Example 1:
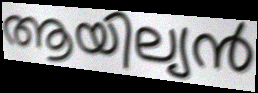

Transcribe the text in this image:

ആയില്യൻ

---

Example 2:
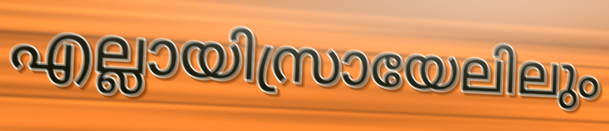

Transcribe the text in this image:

എല്ലായിസ്രായേലിലും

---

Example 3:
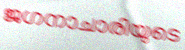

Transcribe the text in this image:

ജഗനാചാരിയുടെ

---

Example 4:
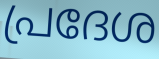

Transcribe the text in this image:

പ്രദേശ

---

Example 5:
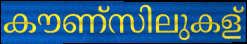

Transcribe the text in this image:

കൗണ്സിലുകള്